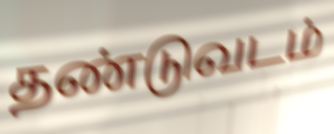
தண்டுவடம்